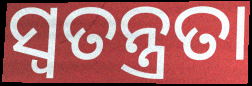
ସ୍ବତନ୍ତ୍ରତା